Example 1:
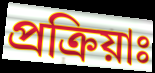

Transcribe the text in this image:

প্রক্রিয়াঃ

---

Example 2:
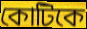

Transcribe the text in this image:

কোটিকে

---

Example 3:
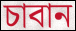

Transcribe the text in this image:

চাবান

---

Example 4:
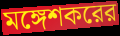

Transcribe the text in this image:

মঙ্গেশকরের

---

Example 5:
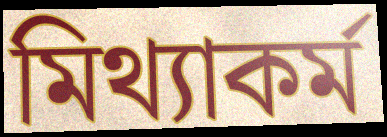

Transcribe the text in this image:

মিথ্যাকর্ম